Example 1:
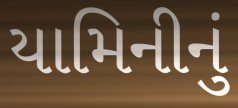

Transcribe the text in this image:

યામિનીનું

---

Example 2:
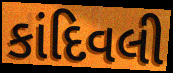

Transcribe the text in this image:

કાંદિવલી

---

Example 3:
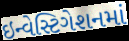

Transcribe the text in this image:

ઇન્વેસ્ટિગેશનમાં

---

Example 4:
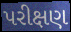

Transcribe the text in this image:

પરીક્ષણ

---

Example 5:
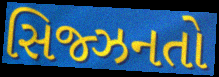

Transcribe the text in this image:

સિજ્ઝનતો